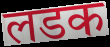
लडक